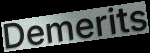
Demerits